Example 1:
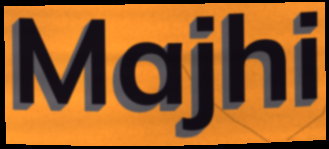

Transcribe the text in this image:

Majhi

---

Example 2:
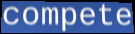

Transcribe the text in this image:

compete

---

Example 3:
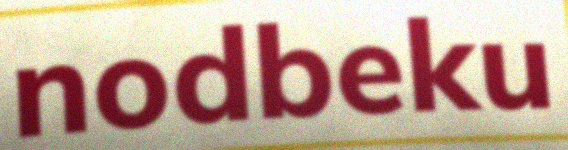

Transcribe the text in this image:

nodbeku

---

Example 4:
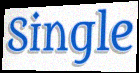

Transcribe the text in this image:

Single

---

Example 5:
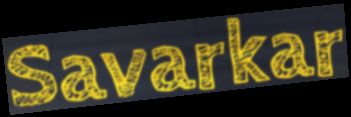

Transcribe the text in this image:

Savarkar